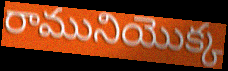
రామునియొక్క